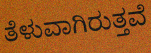
ತೆಳುವಾಗಿರುತ್ತವೆ